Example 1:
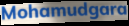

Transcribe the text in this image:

Mohamudgara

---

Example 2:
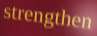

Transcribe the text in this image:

strengthen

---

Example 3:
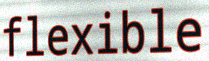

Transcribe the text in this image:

flexible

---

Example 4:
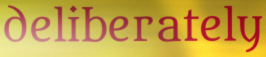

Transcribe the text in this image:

deliberately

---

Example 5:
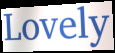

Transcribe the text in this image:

Lovely